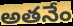
అతనేం